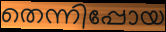
തെന്നിപ്പോയ